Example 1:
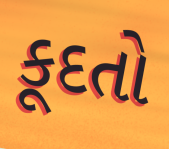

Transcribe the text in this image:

કૂદતો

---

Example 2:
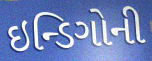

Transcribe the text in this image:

ઇન્ડિગોની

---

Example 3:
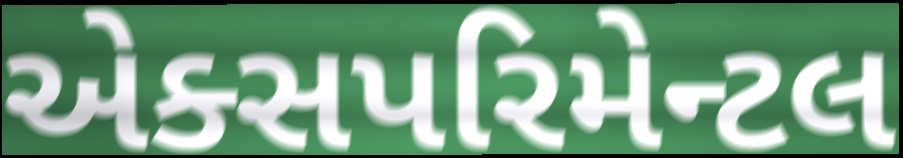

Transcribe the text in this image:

એક્સપરિમેન્ટલ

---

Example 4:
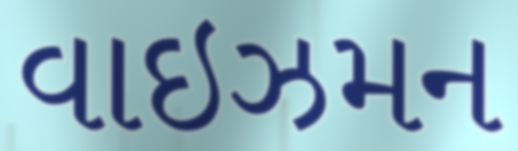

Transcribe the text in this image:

વાઇઝમન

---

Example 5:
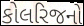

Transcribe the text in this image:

કોલરિજનો